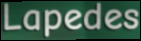
Lapedes